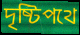
দৃষ্টিপথে